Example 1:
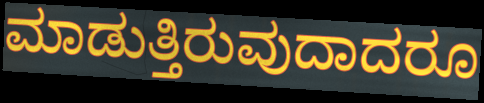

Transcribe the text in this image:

ಮಾಡುತ್ತಿರುವುದಾದರೂ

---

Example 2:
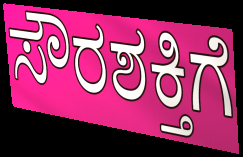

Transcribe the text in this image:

ಸೌರಶಕ್ತಿಗೆ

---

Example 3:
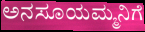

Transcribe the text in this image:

ಅನಸೂಯಮ್ಮನಿಗೆ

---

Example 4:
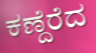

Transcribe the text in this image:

ಕಣ್ದೆರೆದ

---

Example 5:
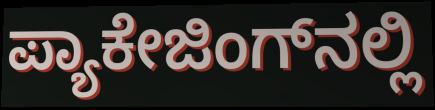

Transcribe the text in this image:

ಪ್ಯಾಕೇಜಿಂಗ್‌ನಲ್ಲಿ